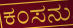
ಕಂಸನು